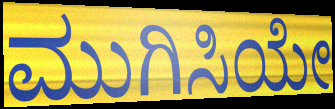
ಮುಗಿಸಿಯೇ